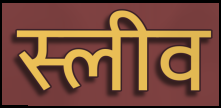
स्लीव